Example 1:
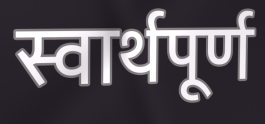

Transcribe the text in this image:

स्वार्थपूर्ण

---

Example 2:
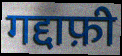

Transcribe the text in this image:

गद्दाफ़ी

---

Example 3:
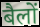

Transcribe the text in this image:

बैलों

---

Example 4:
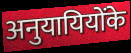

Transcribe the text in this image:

अनुयायियोंके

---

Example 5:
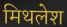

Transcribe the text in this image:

मिथलेश